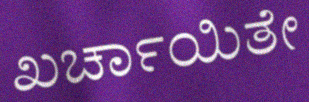
ಖರ್ಚಾಯಿತೇ